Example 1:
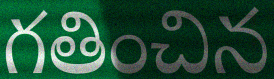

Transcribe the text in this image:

గతించిన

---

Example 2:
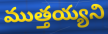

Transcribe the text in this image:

ముత్తయ్యని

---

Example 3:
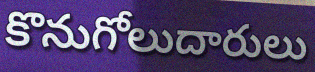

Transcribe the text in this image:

కొనుగోలుదారులు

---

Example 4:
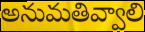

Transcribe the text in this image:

అనుమతివ్వాలి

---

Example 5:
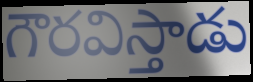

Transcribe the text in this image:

గౌరవిస్తాడు